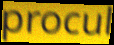
procul